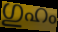
ഗുഹം